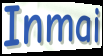
Inmai